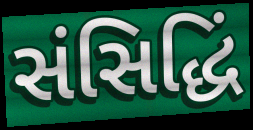
સંસિદ્ધિં